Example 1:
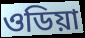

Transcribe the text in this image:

ওডিয়া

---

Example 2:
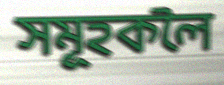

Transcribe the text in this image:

সমূহকলৈ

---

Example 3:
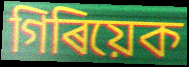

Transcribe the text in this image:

গিৰিয়েক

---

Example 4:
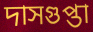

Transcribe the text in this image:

দাসগুপ্তা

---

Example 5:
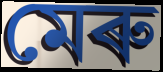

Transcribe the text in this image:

মেৰু